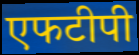
एफटीपी